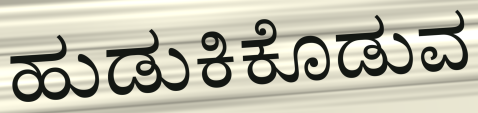
ಹುಡುಕಿಕೊಡುವ